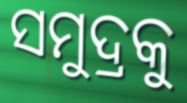
ସମୁଦ୍ରକୁ